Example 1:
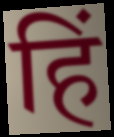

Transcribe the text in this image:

हिं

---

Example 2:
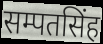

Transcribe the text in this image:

सम्पतसिंह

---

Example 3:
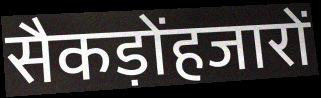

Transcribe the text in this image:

सैकड़ोंहजारों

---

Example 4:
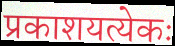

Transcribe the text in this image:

प्रकाशयत्येकः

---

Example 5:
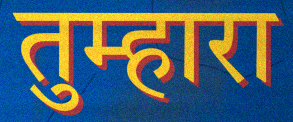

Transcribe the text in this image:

तुम्‍हारा